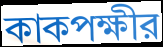
কাকপক্ষীর